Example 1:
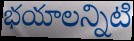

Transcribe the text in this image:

భయాలన్నిటి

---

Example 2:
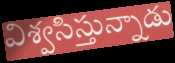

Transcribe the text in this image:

విశ్వసిస్తున్నాడు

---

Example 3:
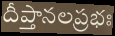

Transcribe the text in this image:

దీప్తానలప్రభః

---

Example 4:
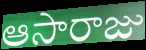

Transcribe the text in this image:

ఆసారాజు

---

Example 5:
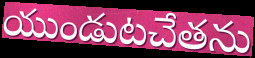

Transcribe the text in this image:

యుండుటచేతను